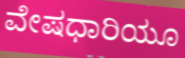
ವೇಷಧಾರಿಯೂ